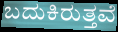
ಬದುಕಿರುತ್ತವೆ